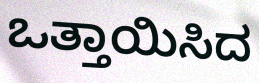
ಒತ್ತಾಯಿಸಿದ